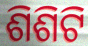
ଶିଶିଟି